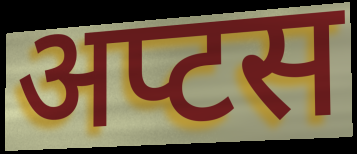
अप्टस